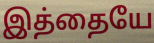
இத்தையே